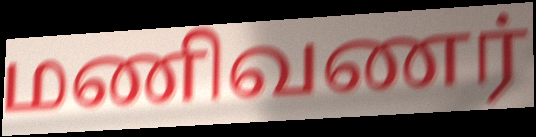
மணிவணர்